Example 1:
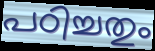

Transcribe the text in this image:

പഠിച്ചതും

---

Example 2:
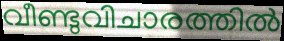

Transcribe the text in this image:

വീണ്ടുവിചാരത്തിൽ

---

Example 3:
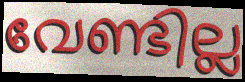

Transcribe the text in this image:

വേണ്ടില്ല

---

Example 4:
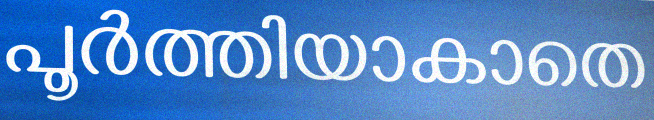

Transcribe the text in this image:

പൂർത്തിയാകാതെ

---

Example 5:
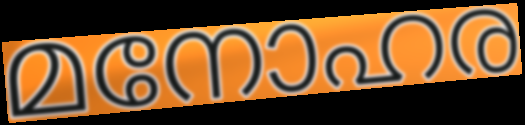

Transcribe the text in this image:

മനോഹര